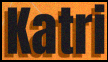
Katri